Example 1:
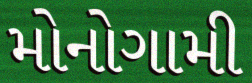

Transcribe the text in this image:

મોનોગામી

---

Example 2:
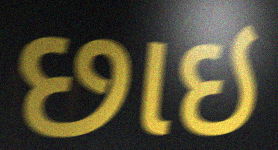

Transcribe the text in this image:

છાઇ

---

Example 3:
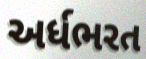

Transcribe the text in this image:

અર્ધભરત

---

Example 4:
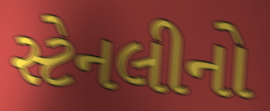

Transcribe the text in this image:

સ્ટેનલીનો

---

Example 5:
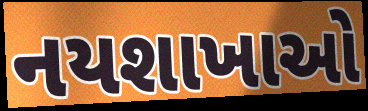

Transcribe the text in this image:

નયશાખાઓ